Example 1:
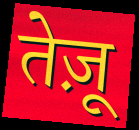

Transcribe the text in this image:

तेज़ू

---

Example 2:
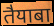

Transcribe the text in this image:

तैयाबा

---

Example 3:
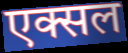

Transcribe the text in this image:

एक्सल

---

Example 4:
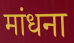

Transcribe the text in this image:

मांधना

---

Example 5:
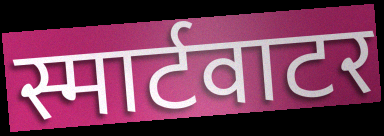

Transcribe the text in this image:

स्मार्टवाटर